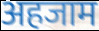
अहजाम